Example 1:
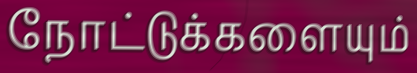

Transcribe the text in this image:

நோட்டுக்களையும்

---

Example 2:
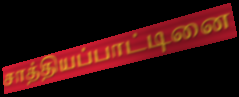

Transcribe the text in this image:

சாத்தியப்பாட்டினை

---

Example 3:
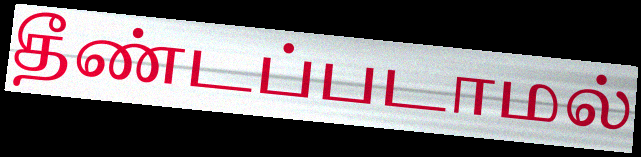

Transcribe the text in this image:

தீண்டப்படாமல்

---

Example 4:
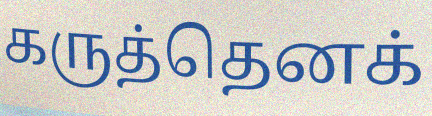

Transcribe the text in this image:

கருத்தெனக்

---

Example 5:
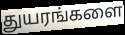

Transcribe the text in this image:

துயரங்களை